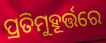
ପ୍ରତିମୁହୂର୍ତ୍ତରେ